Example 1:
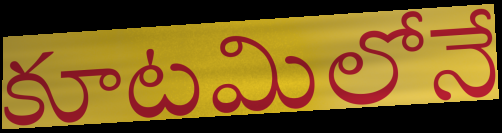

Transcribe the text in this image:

కూటమిలోనే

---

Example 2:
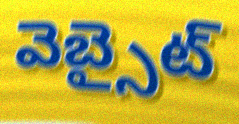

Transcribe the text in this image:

వెబ్సైట్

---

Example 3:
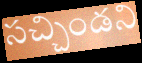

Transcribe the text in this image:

సచ్చిండని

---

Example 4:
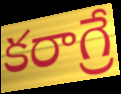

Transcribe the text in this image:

కరాగ్రే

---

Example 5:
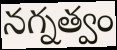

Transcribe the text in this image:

నగ్నత్వం